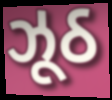
ઝૂઠ